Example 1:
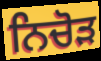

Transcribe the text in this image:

ਨਿਚੋੜ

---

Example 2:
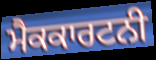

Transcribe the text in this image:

ਮੈਕਕਾਰਟਨੀ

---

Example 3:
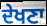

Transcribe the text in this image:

ਦੇਖਣਾ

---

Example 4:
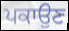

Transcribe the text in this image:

ਪਕਾਉਣ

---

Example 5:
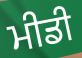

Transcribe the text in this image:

ਮੀਡੀ